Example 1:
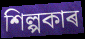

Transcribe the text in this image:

শিল্পকাৰ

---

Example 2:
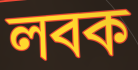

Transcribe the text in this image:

লবক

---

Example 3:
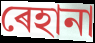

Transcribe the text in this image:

ৰেহানা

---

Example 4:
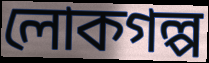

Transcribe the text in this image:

লোকগল্প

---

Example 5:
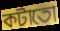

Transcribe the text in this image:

কটাতো